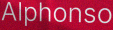
Alphonso